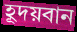
হূদয়বান